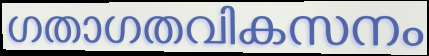
ഗതാഗതവികസനം